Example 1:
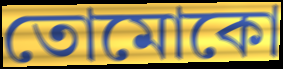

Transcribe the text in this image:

তোমোকো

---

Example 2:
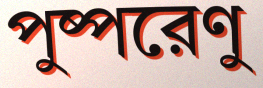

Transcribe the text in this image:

পুষ্পরেণু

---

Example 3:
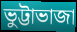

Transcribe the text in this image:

ভুট্টাভাজা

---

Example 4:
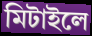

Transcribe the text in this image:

মিটাইলে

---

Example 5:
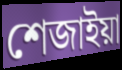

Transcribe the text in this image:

শেজাইয়া